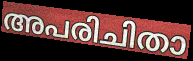
അപരിചിതാ